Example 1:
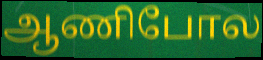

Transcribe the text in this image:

ஆணிபோல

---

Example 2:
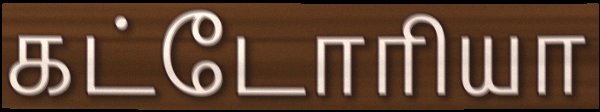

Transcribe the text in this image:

கட்டோரியா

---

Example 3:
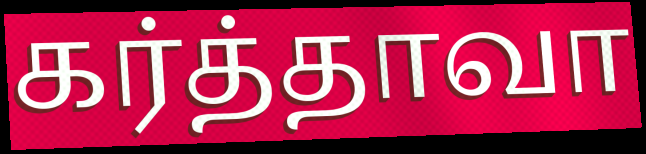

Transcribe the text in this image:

கர்த்தாவா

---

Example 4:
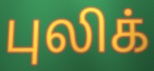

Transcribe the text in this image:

புலிக்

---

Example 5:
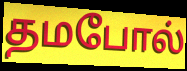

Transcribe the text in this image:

தமபோல்